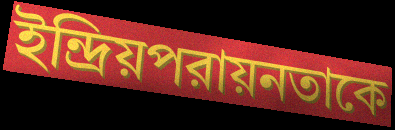
ইন্দ্রিয়পরায়নতাকে